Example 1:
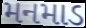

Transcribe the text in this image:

મનમાડ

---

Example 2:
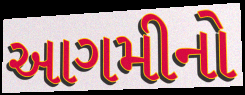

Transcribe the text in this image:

આગમીનો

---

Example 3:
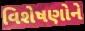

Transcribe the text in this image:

વિશેષણોને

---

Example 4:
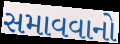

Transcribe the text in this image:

સમાવવાનો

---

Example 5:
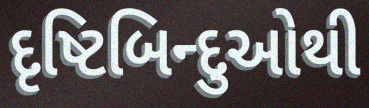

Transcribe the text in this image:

દૃષ્ટિબિન્દુઓથી